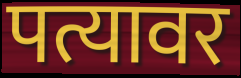
पत्यावर